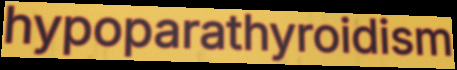
hypoparathyroidism